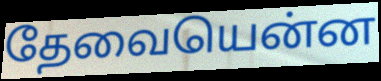
தேவையென்ன